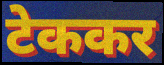
टेककर